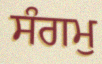
ਸੰਗਮੁ